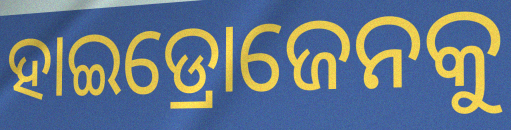
ହାଇଡ୍ରୋଜେନକୁ